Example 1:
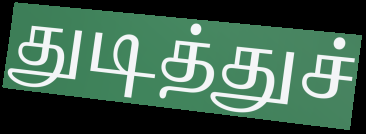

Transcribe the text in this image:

துடித்துச்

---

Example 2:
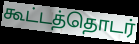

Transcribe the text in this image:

கூட்டத்தொடர்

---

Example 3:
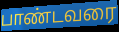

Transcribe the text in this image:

பாண்டவரை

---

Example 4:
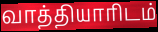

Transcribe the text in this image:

வாத்தியாரிடம்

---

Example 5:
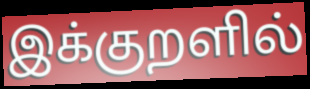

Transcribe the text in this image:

இக்குறளில்